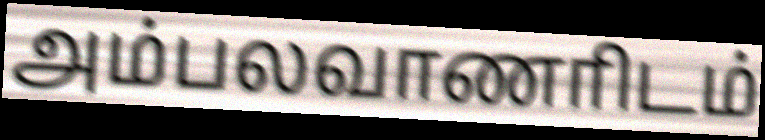
அம்பலவாணரிடம்